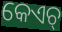
କେଏଚ୍